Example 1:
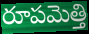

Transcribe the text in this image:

రూపమెత్తి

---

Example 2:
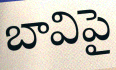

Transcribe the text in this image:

బావిపై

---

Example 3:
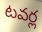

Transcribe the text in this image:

టవర్ల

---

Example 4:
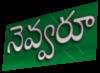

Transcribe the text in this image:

నెవ్వరూ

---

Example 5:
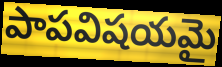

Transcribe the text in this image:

పాపవిషయమై